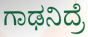
ಗಾಢನಿದ್ರೆ